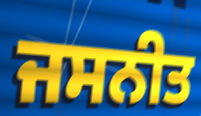
ਜਸਨੀਤ